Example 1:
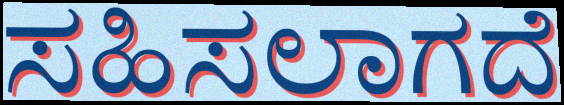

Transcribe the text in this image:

ಸಹಿಸಲಾಗದೆ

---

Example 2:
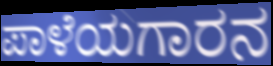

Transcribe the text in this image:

ಪಾಳೆಯಗಾರನ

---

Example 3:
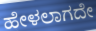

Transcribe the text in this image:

ಹೇಳಲಾಗದೇ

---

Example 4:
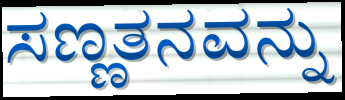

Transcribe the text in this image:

ಸಣ್ಣತನವನ್ನು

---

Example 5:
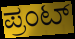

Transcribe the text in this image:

ಪ್ರಂಟ್